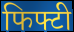
फिफ्टी